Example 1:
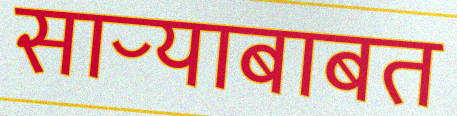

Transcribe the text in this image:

साऱ्याबाबत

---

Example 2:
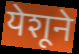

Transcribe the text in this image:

येशूने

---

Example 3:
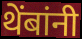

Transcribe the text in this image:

थेंबांनी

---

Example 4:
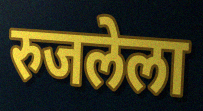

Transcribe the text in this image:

रुजलेला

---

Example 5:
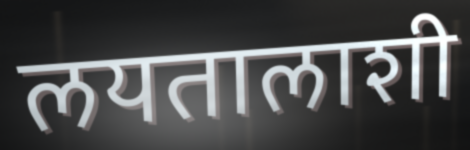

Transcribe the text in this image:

लयतालाशी